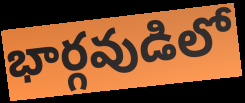
భార్గవుడిలో